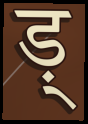
ड़्